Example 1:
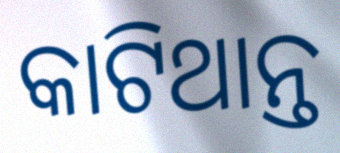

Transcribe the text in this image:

କାଟିଥାନ୍ତ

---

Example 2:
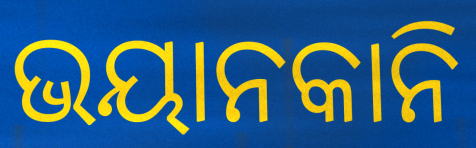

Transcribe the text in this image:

ଭୟାନକାନି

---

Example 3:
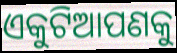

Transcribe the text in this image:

ଏକୁଟିଆପଣକୁ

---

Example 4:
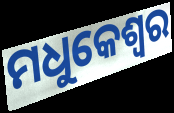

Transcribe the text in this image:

ମଧୁକେଶ୍ୱର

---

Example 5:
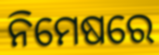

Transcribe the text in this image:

ନିମେଷରେ